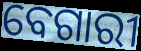
ବେଗାରୀ